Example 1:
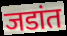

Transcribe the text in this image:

जडांत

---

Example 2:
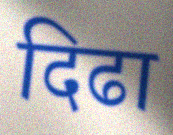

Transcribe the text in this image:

दिढा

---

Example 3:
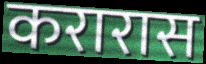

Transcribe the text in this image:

करारास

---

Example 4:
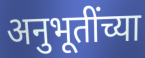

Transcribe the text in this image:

अनुभूतींच्या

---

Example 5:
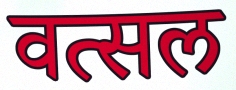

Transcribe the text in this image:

वत्सल